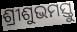
ଶ୍ରୀଶୁଭମସ୍ତୁ